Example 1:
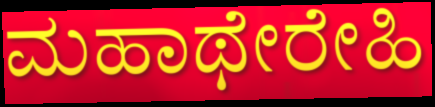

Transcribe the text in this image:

ಮಹಾಥೇರೇಹಿ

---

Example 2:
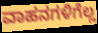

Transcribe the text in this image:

ವಾಹನಗಳಿಗೆಲ್ಲ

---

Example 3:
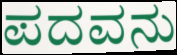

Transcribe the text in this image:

ಪದವನು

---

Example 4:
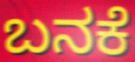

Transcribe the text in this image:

ಬನಕೆ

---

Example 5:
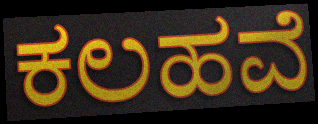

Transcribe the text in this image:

ಕಲಹವೆ